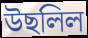
উছলিল